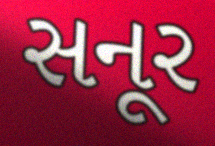
સનૂર